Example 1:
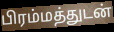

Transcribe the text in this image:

பிரம்மத்துடன்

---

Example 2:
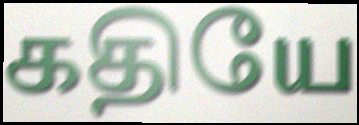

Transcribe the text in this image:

கதியே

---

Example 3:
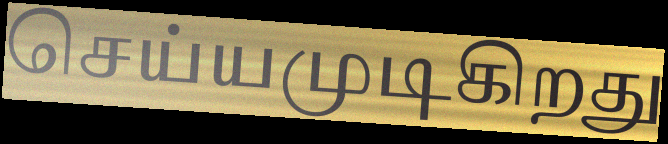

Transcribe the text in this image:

செய்யமுடிகிறது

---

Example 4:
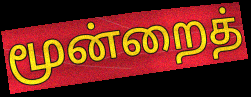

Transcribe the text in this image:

மூன்றைத்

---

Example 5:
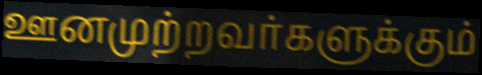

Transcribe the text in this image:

ஊனமுற்றவர்களுக்கும்